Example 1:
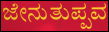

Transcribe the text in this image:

ಜೇನುತುಪ್ಪವ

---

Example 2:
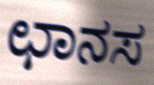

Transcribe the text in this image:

ಛಾನಸ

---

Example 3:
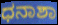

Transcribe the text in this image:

ಧನಾಶಾ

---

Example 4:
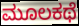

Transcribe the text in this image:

ಮೂಲಕಥೆ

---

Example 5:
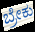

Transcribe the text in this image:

ಬ್ರೇಕು